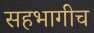
सहभागीच